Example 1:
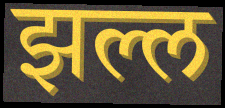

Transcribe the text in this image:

झल्ल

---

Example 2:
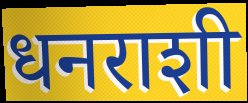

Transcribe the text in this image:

धनराशी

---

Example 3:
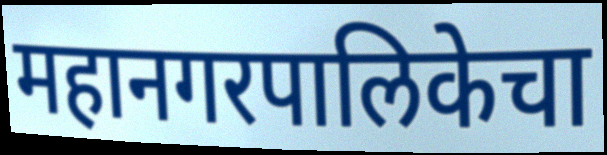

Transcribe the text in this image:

महानगरपालिकेचा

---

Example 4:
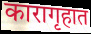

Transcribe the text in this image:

कारागृहात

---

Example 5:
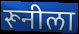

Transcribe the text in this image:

रूनीला